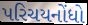
પરિચયનોંધો